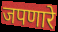
जपणारे